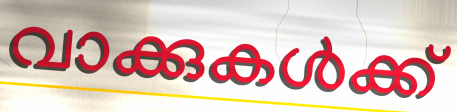
വാക്കുകൾക്ക്